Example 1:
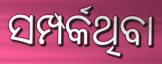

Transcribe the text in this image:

ସମ୍ପର୍କଥିବା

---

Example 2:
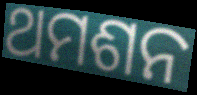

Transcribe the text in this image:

ଥମଶନ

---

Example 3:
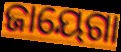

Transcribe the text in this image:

ଜାୟେଗା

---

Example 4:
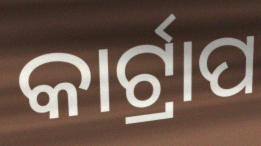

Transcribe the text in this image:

କାର୍ଟ୍ରାପ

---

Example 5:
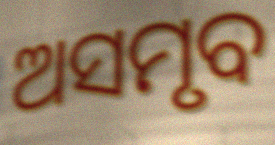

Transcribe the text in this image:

ଅସମୃବ